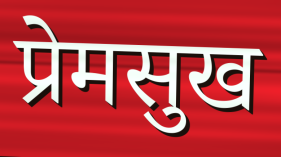
प्रेमसुख